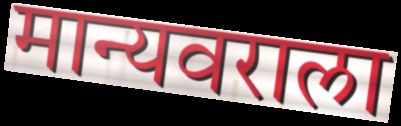
मान्यवराला